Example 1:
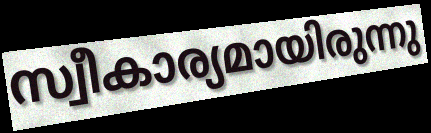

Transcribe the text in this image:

സ്വീകാര്യമായിരുന്നു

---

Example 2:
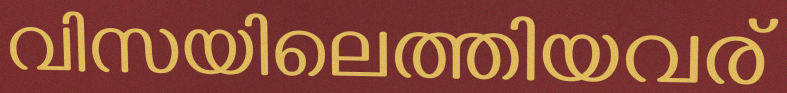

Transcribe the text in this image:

വിസയിലെത്തിയവര്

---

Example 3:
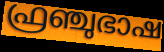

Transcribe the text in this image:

ഫ്രഞ്ചുഭാഷ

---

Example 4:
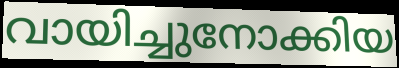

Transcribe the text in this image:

വായിച്ചുനോക്കിയ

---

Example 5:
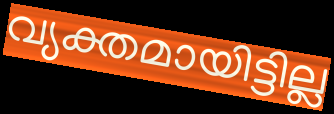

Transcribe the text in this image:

വ്യക്തമായിട്ടില്ല